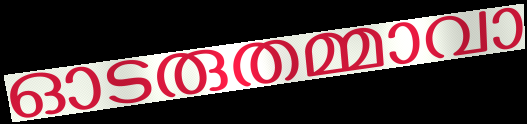
ഓടരുതമ്മാവാ